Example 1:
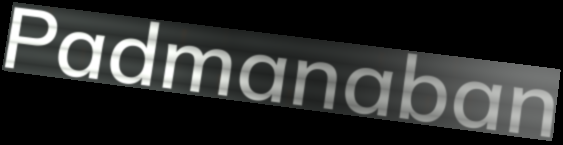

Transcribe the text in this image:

Padmanaban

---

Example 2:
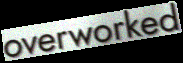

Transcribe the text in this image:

overworked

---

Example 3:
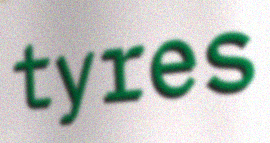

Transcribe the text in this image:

tyres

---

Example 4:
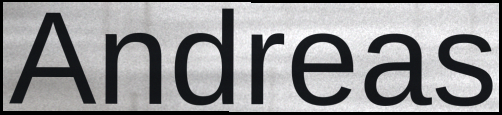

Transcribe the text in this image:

Andreas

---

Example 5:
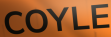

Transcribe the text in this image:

COYLE